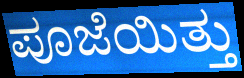
ಪೂಜೆಯಿತ್ತು